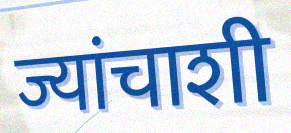
ज्यांचाशी